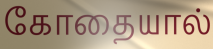
கோதையால்